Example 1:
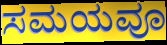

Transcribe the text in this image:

ಸಮಯವೂ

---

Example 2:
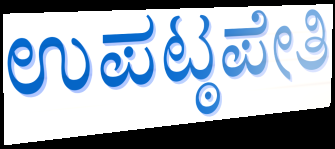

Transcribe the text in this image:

ಉಪಟ್ಠಪೇತಿ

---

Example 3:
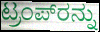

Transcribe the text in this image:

ಟ್ರಂಪ್‌ರನ್ನು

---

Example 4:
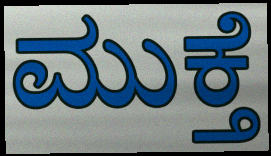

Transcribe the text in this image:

ಮುಕ್ತೆ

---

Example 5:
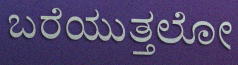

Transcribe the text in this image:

ಬರೆಯುತ್ತಲೋ